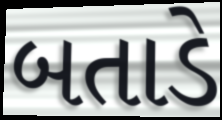
બતાડે